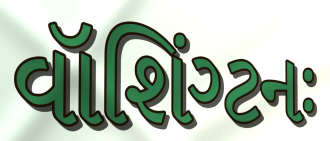
વૉશિંગ્ટનઃ